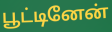
பூட்டினேன்